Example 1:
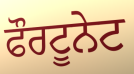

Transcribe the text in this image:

ਫੌਰਟੂਨੇਟ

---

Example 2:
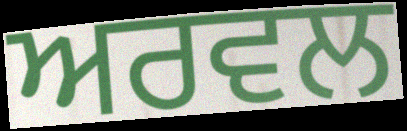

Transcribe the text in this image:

ਅਰਵਲ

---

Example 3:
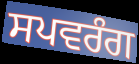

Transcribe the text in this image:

ਸਪਵਰੰਗ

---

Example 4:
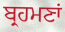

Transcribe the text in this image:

ਬ੍ਰਹਮਣਾਂ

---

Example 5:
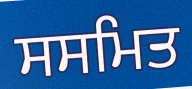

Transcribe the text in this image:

ਸਸਮਿਤ